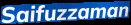
Saifuzzaman